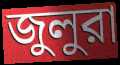
জুলুরা